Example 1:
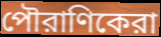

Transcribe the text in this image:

পৌরাণিকেরা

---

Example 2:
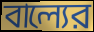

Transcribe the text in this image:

বাল্যের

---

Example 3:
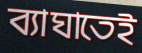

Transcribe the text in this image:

ব্যাঘাতেই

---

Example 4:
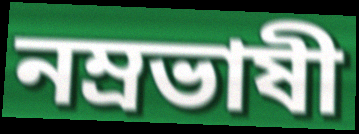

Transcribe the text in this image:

নম্রভাষী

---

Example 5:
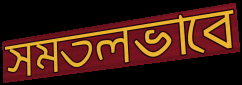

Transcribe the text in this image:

সমতলভাবে